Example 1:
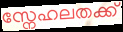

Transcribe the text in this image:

സ്നേഹലതക്ക്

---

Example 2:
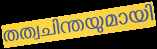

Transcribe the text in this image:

തത്വചിന്തയുമായി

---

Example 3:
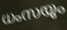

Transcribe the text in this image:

ധംസയും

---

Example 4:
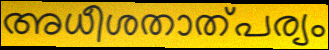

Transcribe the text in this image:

അധീശതാത്പര്യം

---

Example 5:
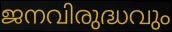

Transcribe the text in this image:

ജനവിരുദ്ധവും